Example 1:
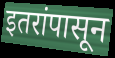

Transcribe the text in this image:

इतरांपासून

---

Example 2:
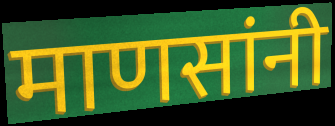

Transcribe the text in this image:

माणसांनी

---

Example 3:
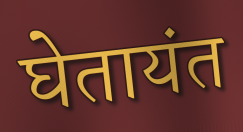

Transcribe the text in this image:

घेतायंत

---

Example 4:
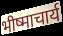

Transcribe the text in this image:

भीष्माचार्य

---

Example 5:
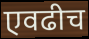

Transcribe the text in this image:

एवढीच